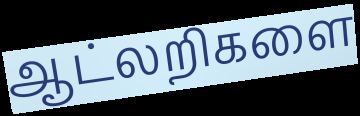
ஆட்லறிகளை